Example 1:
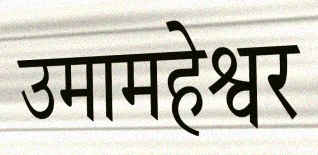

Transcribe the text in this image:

उमामहेश्वर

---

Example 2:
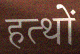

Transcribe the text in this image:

हत्थों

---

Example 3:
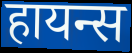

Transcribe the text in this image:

हायन्स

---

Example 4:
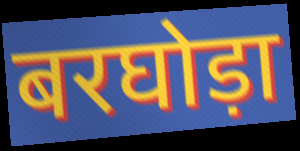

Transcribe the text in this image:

बरघोड़ा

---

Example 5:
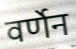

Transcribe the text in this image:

वर्णेन